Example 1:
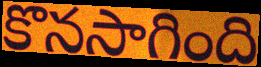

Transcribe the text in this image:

కొనసాగింది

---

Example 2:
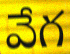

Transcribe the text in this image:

వేగ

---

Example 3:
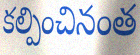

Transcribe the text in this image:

కల్పించినంత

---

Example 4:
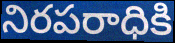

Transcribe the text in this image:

నిరపరాధికి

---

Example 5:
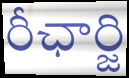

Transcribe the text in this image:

రీఛార్జి